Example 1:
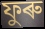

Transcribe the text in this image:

ফুৰু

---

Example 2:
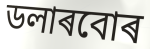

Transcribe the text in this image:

ডলাৰবোৰ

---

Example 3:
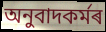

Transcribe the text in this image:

অনুবাদকৰ্মৰ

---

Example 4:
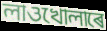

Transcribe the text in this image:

লাওখোলাৰে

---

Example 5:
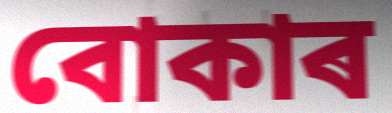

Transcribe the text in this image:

বোকাৰ